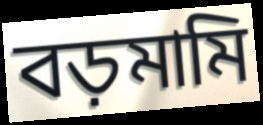
বড়মামি